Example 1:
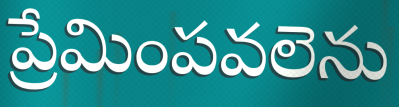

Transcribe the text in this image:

ప్రేమింపవలెను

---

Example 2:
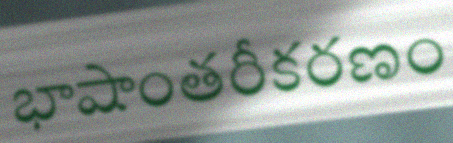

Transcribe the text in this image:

భాషాంతరీకరణం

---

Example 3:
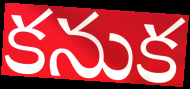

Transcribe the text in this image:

కనుక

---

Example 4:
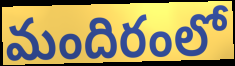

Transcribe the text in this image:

మందిరంలో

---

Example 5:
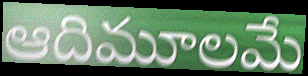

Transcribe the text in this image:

ఆదిమూలమే